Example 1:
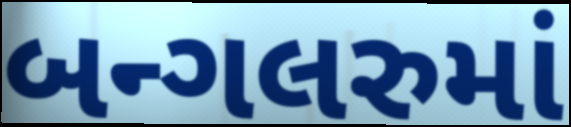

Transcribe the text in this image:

બન્ગલરુમાં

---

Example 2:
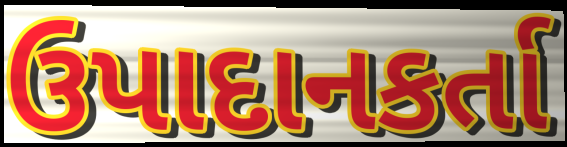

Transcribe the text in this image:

ઉપાદાનકર્તા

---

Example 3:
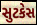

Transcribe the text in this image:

સુટકેસ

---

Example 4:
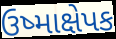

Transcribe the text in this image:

ઉષ્માક્ષેપક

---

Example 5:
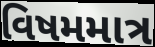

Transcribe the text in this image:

વિષમમાત્ર